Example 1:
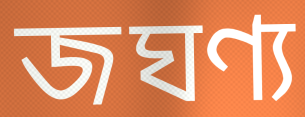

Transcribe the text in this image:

জঘণ্য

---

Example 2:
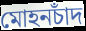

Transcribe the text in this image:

মোহনচাঁদ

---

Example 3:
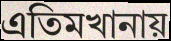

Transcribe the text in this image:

এতিমখানায়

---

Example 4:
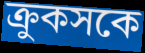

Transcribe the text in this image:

ক্রুকসকে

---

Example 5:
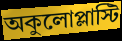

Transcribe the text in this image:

অকুলোপ্লাস্টি